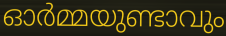
ഓർമ്മയുണ്ടാവും